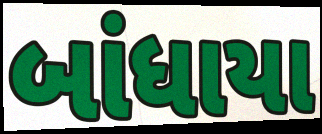
બાંધાયા